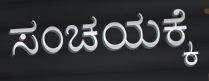
ಸಂಚಯಕ್ಕೆ